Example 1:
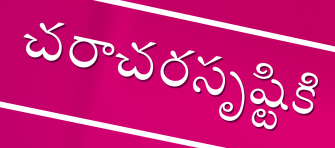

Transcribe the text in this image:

చరాచరసృష్టికి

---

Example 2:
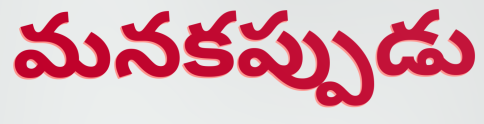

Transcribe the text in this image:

మనకప్పుడు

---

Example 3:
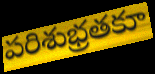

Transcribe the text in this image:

పరిశుభ్రతకూ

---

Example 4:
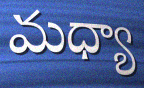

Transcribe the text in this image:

మధ్యా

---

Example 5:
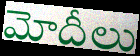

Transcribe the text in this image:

మోదీలు